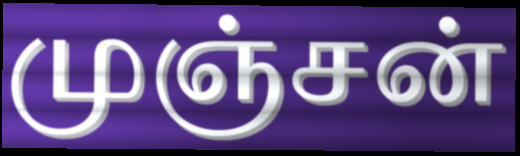
முஞ்சன்